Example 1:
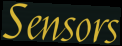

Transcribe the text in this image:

Sensors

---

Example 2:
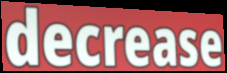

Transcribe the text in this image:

decrease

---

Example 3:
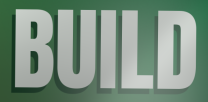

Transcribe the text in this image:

BUILD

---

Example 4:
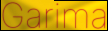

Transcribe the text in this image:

Garima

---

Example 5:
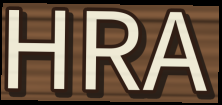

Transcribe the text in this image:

HRA